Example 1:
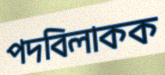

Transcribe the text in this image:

পদবিলাকক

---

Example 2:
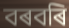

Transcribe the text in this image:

বৰবৰি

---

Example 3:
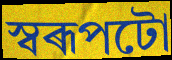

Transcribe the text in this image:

স্বৰূপটো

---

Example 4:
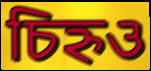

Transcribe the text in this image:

চিহ্নও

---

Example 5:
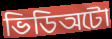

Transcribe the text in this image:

ভিডিঅটো